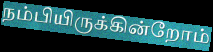
நம்பியிருக்கின்றோம்